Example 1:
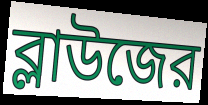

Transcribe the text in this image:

ব্লাউজের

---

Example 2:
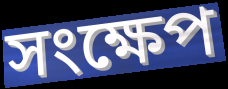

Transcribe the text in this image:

সংক্ষেপ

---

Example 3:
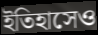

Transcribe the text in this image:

ইতিহাসেও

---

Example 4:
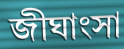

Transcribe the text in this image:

জীঘাংসা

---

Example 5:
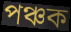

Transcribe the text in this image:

পঞ্চক